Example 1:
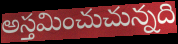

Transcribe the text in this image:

అస్తమించుచున్నది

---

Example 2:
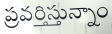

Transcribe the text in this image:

ప్రవర్తిస్తున్నాం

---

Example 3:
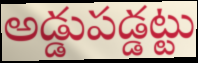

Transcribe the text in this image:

అడ్డుపడ్డట్టు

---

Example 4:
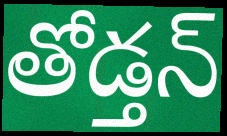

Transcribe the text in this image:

తోడ్తన్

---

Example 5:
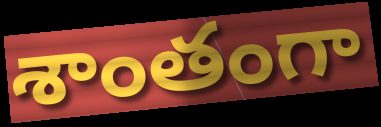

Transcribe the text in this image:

శాంతంగా